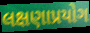
લક્ષણાપ્રયોગ